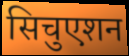
सिचुएशन